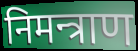
निमन्त्राण